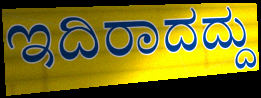
ಇದಿರಾದದ್ದು